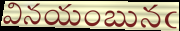
వినయంబునఁ